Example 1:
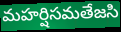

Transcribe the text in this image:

మహర్షిసమతేజసి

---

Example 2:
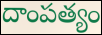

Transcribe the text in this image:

దాంపత్యం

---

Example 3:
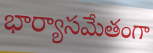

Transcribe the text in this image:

భార్యాసమేతంగా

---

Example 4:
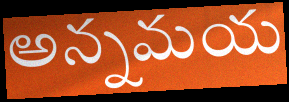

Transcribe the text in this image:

అన్నమయ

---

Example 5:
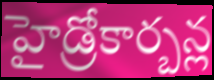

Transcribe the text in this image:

హైడ్రోకార్బన్ల